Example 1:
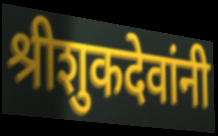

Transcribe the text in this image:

श्रीशुकदेवांनी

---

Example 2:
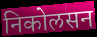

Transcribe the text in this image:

निकोलसन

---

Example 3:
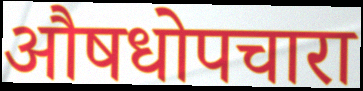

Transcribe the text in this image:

औषधोपचारा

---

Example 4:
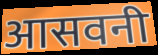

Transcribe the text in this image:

आसवनी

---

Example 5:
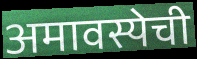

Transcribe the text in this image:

अमावस्येची